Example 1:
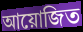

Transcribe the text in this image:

আয়োজিত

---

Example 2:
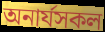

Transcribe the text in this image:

অনাৰ্যসকল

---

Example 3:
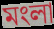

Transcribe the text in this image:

মংলা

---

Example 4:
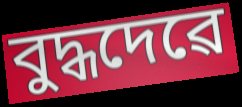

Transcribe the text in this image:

বুদ্ধদেৱে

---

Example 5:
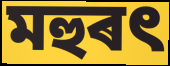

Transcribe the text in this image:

মহুৰৎ